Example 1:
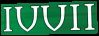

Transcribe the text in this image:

IUUII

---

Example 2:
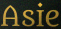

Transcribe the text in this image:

Asie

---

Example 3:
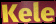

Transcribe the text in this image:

Kele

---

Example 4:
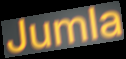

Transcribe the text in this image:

Jumla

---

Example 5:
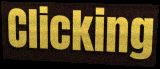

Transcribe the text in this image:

Clicking